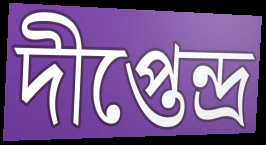
দীপ্তেন্দ্র